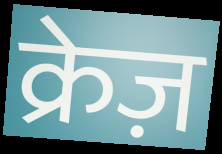
क्रेज़